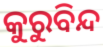
କୁରୁବିନ୍ଦ